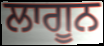
ਲਾਗੂਨ